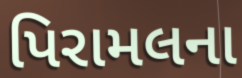
પિરામલના